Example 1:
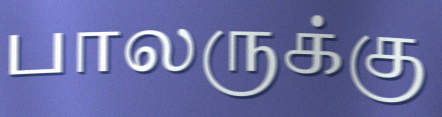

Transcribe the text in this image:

பாலருக்கு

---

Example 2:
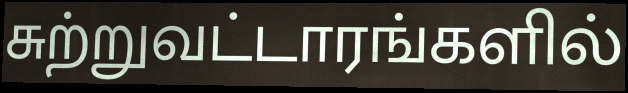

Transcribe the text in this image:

சுற்றுவட்டாரங்களில்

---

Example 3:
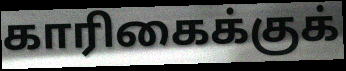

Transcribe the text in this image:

காரிகைக்குக்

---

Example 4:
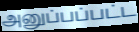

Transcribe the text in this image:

அனுப்பப்பட்ட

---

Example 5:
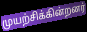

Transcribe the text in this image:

முயற்சிக்கின்றனர்